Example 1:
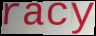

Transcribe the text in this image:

racy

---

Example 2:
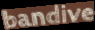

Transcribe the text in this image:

bandive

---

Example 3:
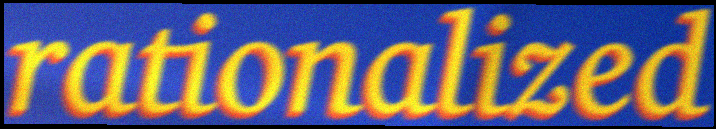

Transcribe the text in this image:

rationalized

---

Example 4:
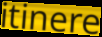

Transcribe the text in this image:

itinere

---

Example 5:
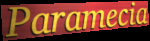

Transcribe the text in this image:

Paramecia